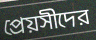
প্রেয়সীদের